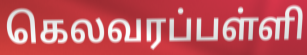
கெலவரப்பள்ளி